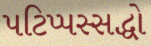
પટિપ્પસ્સદ્ધો